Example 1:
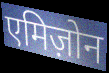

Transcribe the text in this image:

एमिज़ोन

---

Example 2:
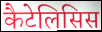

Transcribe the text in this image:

कैटेलिसिस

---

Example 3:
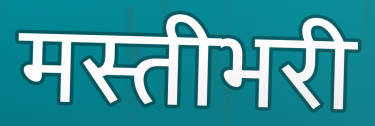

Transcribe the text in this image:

मस्तीभरी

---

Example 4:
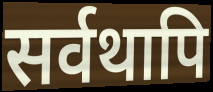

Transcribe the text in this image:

सर्वथापि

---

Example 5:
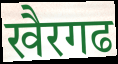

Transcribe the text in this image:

खैरगढ